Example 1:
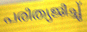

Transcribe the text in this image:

പരിത്യജിച്ചു്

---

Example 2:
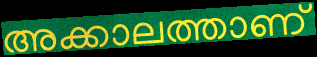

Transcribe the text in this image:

അക്കാലത്താണ്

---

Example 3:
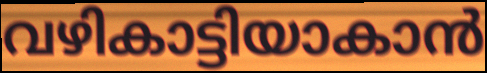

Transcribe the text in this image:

വഴികാട്ടിയാകാൻ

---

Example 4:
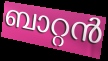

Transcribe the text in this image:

ബാറ്റൻ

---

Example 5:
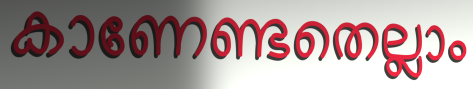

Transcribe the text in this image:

കാണേണ്ടതെല്ലാം